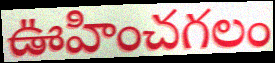
ఊహించగలం